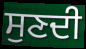
ਸੁਣਦੀ